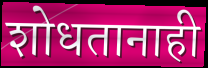
शोधतानाही